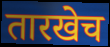
तारखेच